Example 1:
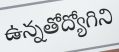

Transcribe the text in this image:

ఉన్నతోద్యోగిని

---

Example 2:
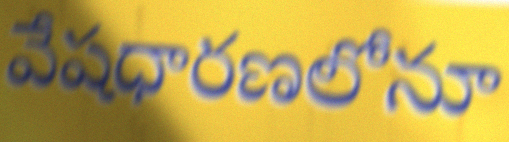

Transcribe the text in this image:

వేషధారణలోనూ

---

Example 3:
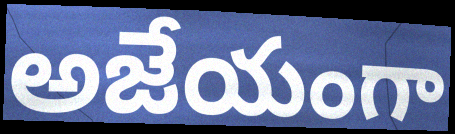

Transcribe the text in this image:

అజేయంగా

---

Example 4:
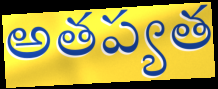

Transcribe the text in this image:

అతప్యత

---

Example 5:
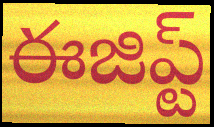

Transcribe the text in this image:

ఈజిప్ట్